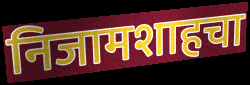
निजामशाहचा